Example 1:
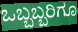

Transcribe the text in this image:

ಒಬ್ಬಬ್ಬರಿಗೂ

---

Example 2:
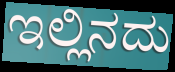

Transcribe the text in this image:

ಇಲ್ಲಿನದು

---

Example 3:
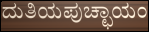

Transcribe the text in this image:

ದುತಿಯಪುಚ್ಛಾಯಂ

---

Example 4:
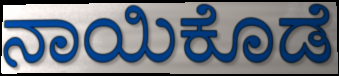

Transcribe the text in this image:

ನಾಯಿಕೊಡೆ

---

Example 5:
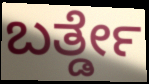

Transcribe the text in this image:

ಬರ್ತ್ಡೇ